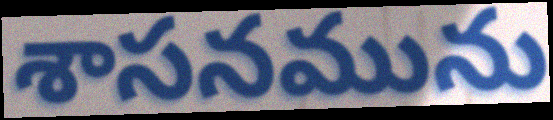
శాసనమును